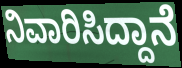
ನಿವಾರಿಸಿದ್ದಾನೆ